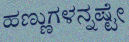
ಹಣ್ಣುಗಳನ್ನಷ್ಟೇ